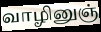
வாழினுஞ்